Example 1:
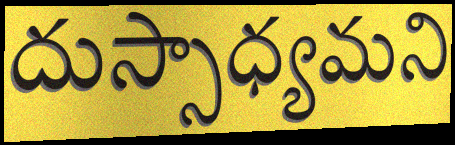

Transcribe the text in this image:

దుస్సాధ్యమని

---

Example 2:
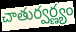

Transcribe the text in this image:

చాతుర్వర్ణ్యం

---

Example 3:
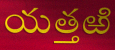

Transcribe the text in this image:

యత్తఱి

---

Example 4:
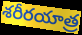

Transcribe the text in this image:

శరీరయాత్ర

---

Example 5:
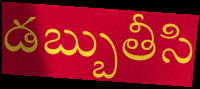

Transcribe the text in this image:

డబ్బుతీసి